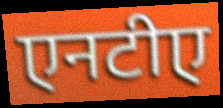
एनटीए